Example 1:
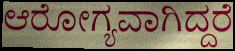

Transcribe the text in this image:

ಆರೋಗ್ಯವಾಗಿದ್ದರೆ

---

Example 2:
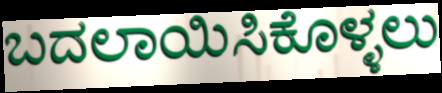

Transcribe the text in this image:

ಬದಲಾಯಿಸಿಕೊಳ್ಳಲು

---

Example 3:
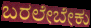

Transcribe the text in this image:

ಬರಲೇಬೇಕು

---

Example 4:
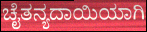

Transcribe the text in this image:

ಚೈತನ್ಯದಾಯಿಯಾಗಿ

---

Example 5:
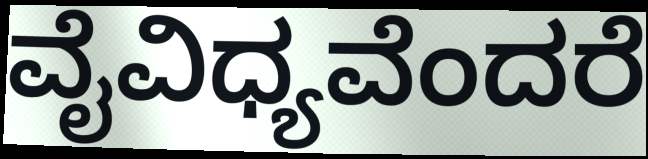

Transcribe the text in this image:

ವೈವಿಧ್ಯವೆಂದರೆ